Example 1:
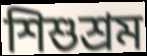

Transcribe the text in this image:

শিশুশ্রম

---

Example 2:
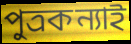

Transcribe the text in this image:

পুত্রকন্যাই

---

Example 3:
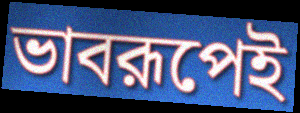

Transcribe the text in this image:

ভাবরূপেই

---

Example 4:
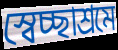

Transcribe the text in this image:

স্বেচ্ছাশ্রমে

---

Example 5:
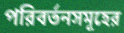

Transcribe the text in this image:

পরিবর্তনসমূহের